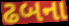
ઢબના